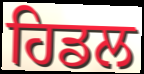
ਹਿਡਲ